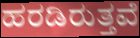
ಹರಡಿರುತ್ತವೆ